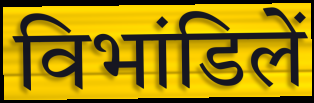
विभांडिलें